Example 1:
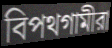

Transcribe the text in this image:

বিপথগামীরা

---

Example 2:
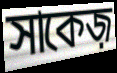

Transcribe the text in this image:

সাকেজ়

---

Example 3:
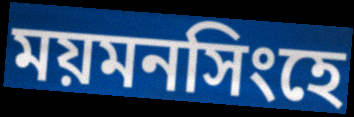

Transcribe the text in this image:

ময়মনসিংহে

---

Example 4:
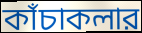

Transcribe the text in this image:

কাঁচাকলার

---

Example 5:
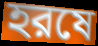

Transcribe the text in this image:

হরষে